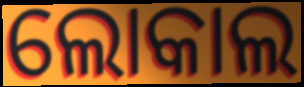
ଲୋକାଲ